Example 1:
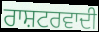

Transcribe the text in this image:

ਰਾਸ਼ਟਰਵਾਦੀ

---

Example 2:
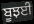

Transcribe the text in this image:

ਬੂਝਈ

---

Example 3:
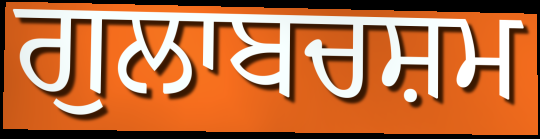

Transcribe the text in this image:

ਗੁਲਾਬਚਸ਼ਮ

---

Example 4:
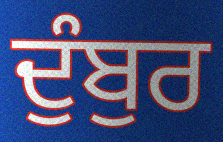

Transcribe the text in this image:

ਦੁੰਬੁਰ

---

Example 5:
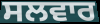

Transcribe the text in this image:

ਸਲਵਾਰ